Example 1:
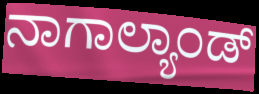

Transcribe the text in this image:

ನಾಗಾಲ್ಯಾಂಡ್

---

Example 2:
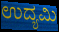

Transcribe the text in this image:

ಉದ್ಯಮಿ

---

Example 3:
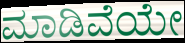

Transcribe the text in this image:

ಮಾಡಿವೆಯೇ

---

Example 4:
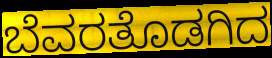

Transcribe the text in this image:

ಬೆವರತೊಡಗಿದ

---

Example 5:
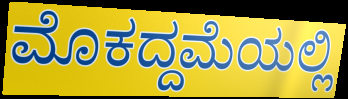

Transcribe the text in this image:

ಮೊಕದ್ದಮೆಯಲ್ಲಿ